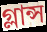
গ্লান্স